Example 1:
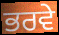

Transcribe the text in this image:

ਭਰਵੇ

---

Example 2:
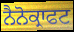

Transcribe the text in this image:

ਨੈਨੋਕ੍ਰਾਫਟ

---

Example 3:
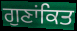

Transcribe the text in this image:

ਗੁਣਾਂਕਿਤ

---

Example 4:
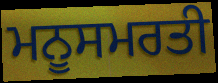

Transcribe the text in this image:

ਮਨੂਸਮਰਤੀ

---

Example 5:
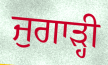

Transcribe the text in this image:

ਜੁਗਾੜ੍ਹੀ